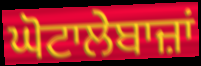
ਘੋਟਾਲੇਬਾਜ਼ਾਂ